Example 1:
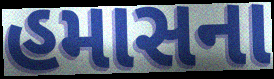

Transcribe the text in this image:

હમાસના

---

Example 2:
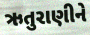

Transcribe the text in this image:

ઋતુરાણીને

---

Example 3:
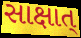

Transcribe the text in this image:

સાક્ષાત્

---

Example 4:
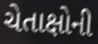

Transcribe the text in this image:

ચેતાક્ષોની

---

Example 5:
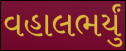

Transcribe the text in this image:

વહાલભર્યું